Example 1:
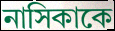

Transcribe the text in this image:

নাসিকাকে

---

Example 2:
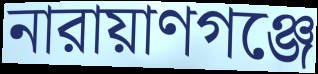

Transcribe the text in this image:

নারায়াণগঞ্জে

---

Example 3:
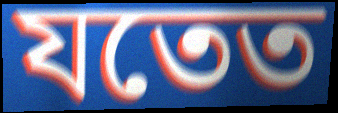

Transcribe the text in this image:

যতেত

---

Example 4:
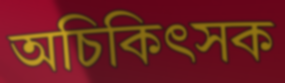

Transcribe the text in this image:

অচিকিৎসক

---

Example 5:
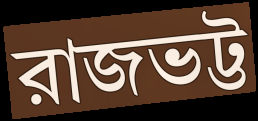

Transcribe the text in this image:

রাজভট্ট